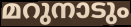
മറുനാടും